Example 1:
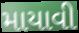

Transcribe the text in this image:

માયાવી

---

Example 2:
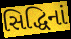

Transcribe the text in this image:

સિદ્ધિનાં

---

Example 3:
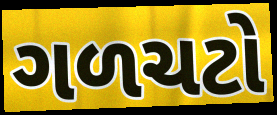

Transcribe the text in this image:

ગળચટો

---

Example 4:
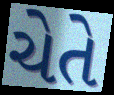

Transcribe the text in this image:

ચેતે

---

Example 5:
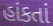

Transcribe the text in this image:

હાંકતાં